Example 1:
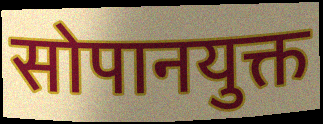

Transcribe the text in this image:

सोपानयुक्त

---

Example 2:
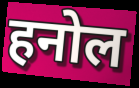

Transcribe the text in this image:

हनोल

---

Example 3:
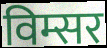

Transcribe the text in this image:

विम्सर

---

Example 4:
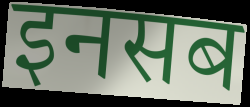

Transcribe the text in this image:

इनसब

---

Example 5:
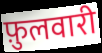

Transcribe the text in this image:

फ़ुलवारी